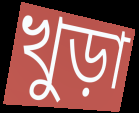
খুড়া